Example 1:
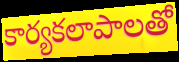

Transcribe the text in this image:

కార్యకలాపాలతో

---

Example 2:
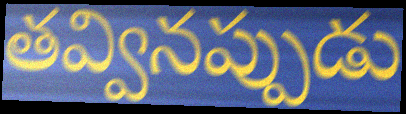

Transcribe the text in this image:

తవ్వినప్పుడు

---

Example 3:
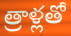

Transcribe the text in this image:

త్రాళ్లతో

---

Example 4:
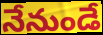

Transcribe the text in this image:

నేనుండే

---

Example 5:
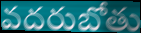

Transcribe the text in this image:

వదరుబోతు